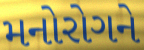
મનોરોગને